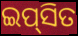
ଇପ୍‌ସିତ